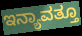
ಇನ್ಯಾವತ್ತೂ